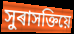
সুৰাসক্তিয়ে